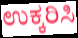
ಉಕ್ಕರಿಸಿ